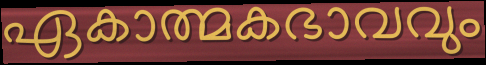
ഏകാത്മകഭാവവും